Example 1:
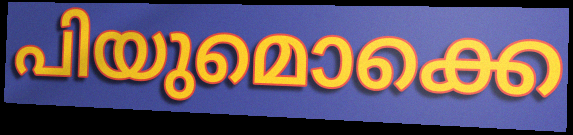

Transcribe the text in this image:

പിയുമൊക്കെ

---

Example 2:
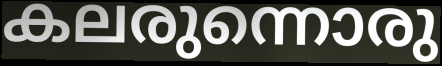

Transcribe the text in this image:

കലരുന്നൊരു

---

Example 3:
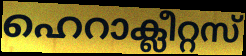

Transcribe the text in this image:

ഹെറാക്ലീറ്റസ്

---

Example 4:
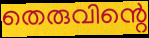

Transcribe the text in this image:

തെരുവിന്റെ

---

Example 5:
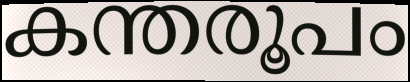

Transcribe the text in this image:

കന്തരൂപം